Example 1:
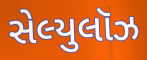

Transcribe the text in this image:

સેલ્યુલૉઝ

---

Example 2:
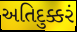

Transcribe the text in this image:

અતિદુક્કરં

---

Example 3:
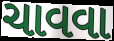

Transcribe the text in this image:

ચાવવા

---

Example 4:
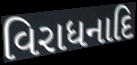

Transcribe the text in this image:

વિરાધનાદિ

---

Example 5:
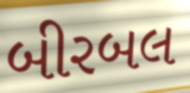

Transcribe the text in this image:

બીરબલ